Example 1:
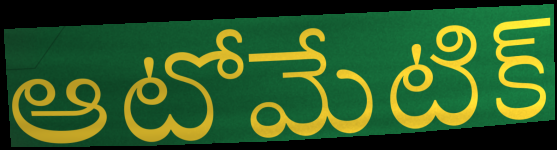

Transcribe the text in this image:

ఆటోమేటిక్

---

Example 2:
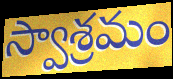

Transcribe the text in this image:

స్వాశ్రమం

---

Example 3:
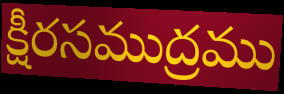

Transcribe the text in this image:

క్షీరసముద్రము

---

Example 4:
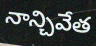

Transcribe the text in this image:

నాన్చివేత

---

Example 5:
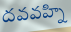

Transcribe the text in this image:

దవవహ్ని